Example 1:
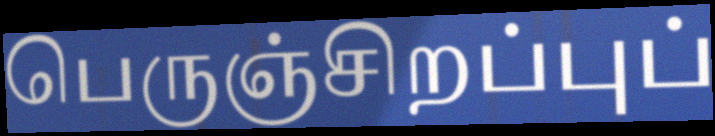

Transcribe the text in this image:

பெருஞ்சிறப்புப்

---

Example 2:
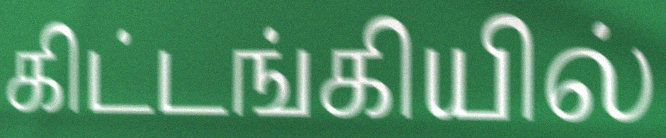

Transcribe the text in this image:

கிட்டங்கியில்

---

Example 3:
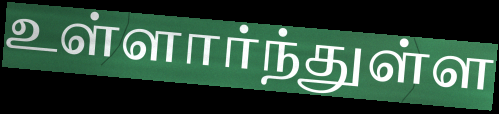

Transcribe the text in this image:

உள்ளார்ந்துள்ள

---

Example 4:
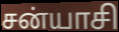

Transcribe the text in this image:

சன்யாசி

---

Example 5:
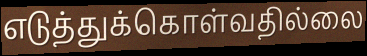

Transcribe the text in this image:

எடுத்துக்கொள்வதில்லை